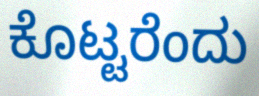
ಕೊಟ್ಟರೆಂದು